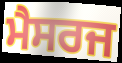
ਮੈਸਰਜ